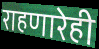
राहणारेही